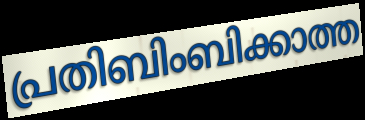
പ്രതിബിംബിക്കാത്ത